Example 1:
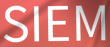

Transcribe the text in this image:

SIEM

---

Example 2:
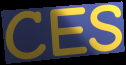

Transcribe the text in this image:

CES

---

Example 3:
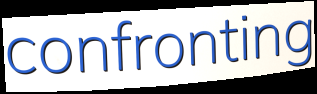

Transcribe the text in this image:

confronting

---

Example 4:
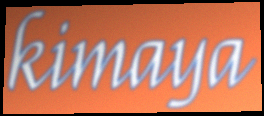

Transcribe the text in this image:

kimaya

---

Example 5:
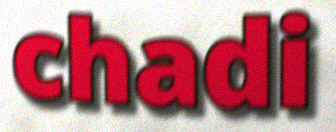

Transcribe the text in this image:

chadi